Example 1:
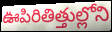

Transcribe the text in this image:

ఊపిరితిత్తుల్లోని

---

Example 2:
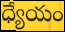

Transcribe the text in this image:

ధ్యేయం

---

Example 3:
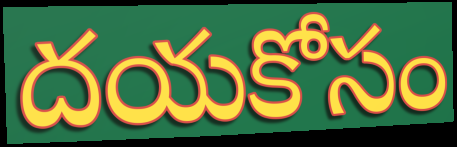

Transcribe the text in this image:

దయకోసం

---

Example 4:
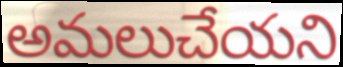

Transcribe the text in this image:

అమలుచేయని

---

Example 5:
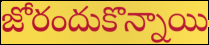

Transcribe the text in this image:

జోరందుకొన్నాయి